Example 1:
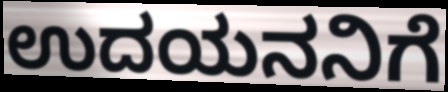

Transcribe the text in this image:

ಉದಯನನಿಗೆ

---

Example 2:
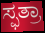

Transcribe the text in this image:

ಸ್ಫತ್ರಾ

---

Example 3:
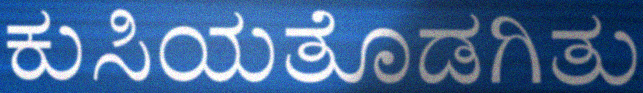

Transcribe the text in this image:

ಕುಸಿಯತೊಡಗಿತು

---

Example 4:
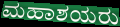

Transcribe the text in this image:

ಮಹಾಶಯರು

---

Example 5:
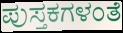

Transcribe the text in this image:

ಪುಸ್ತಕಗಳಂತೆ